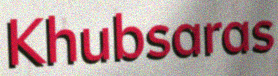
Khubsaras